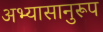
अभ्यासानुरूप